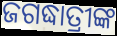
ଜଗଦ୍ଧାତ୍ରୀଙ୍କ